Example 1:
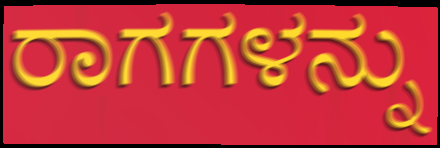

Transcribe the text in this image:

ರಾಗಗಳನ್ನು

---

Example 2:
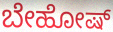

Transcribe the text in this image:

ಬೇಹೋಷ್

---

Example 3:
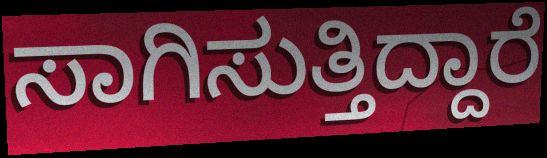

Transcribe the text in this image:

ಸಾಗಿಸುತ್ತಿದ್ದಾರೆ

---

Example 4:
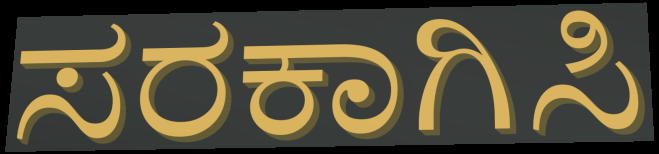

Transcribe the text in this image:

ಸರಕಾಗಿಸಿ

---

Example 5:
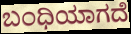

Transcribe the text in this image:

ಬಂಧಿಯಾಗದೆ